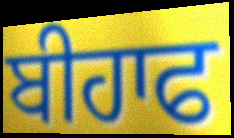
ਬੀਹਾਫ